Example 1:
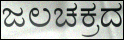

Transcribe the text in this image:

ಜಲಚಕ್ರದ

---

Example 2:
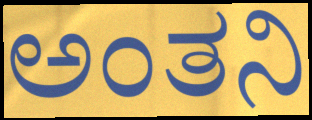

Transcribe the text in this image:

ಅಂತನಿ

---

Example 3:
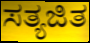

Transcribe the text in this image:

ಸತ್ಯಜಿತ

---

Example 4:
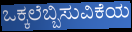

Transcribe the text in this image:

ಒಕ್ಕಲೆಬ್ಬಿಸುವಿಕೆಯ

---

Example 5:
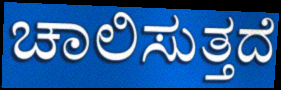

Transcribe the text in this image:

ಚಾಲಿಸುತ್ತದೆ